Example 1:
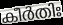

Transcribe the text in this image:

കീർതിഃ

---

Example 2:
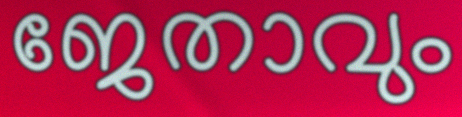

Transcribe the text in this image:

ജേതാവും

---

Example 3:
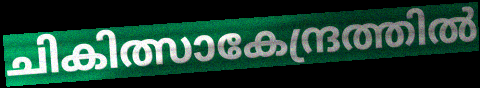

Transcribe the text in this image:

ചികിത്സാകേന്ദ്രത്തിൽ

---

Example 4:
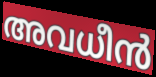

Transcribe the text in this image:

അവധീൻ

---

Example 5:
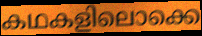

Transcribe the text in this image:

കഥകളിലൊക്കെ